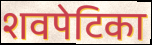
शवपेटिका